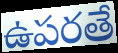
ఉపరతే